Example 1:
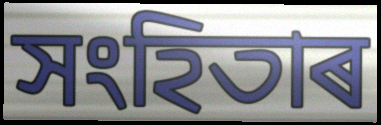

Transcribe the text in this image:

সংহিতাৰ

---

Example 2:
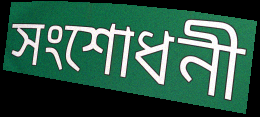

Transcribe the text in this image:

সংশোধনী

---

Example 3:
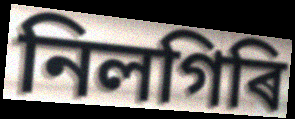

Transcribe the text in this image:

নিলগিৰি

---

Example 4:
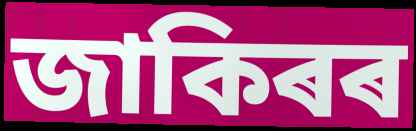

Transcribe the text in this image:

জাকিৰৰ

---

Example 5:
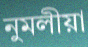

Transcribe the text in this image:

নুমলীয়া